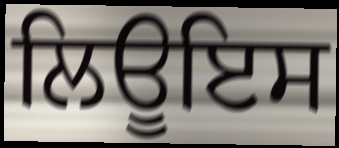
ਲਿਊਇਸ